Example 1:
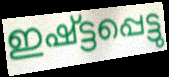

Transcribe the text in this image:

ഇഷ്ട്ടപ്പെട്ടു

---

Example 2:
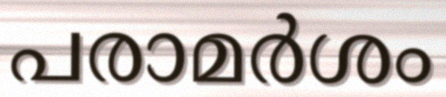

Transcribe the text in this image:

പരാമർശം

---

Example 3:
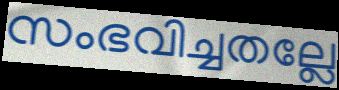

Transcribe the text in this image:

സംഭവിച്ചതല്ലേ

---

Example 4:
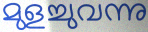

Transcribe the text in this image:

മുളച്ചുവന്നു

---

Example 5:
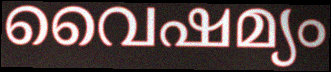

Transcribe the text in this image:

വൈഷമ്യം